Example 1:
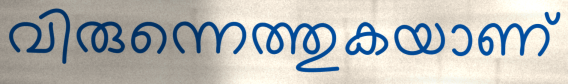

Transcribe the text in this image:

വിരുന്നെത്തുകയാണ്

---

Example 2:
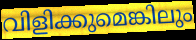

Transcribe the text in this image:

വിളിക്കുമെങ്കിലും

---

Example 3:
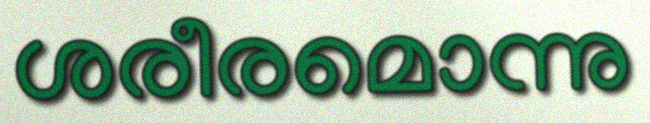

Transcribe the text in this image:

ശരീരമൊന്നു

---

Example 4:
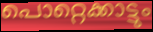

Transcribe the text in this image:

പൊറ്റെക്കാട്ടും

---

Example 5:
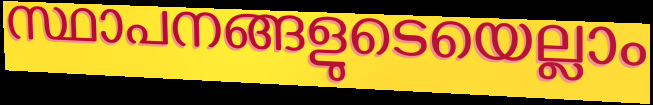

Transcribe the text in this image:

സ്ഥാപനങ്ങളുടെയെല്ലാം